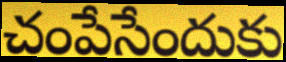
చంపేసేందుకు